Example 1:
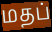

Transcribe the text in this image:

மதப்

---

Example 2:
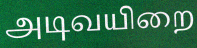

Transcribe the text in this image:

அடிவயிறை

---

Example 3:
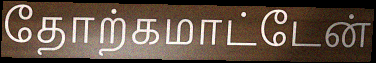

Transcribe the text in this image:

தோற்கமாட்டேன்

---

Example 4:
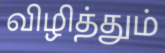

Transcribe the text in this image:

விழித்தும்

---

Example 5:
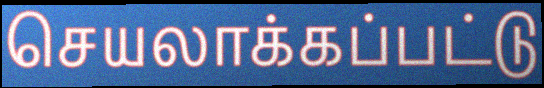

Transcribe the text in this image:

செயலாக்கப்பட்டு